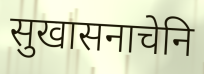
सुखासनाचेनि